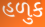
હળુક